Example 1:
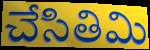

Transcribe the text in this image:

చేసితిమి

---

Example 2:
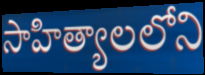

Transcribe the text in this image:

సాహిత్యాలలోని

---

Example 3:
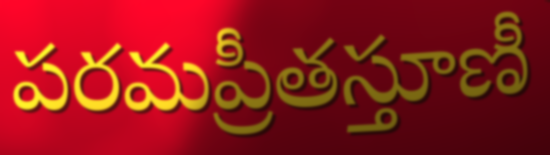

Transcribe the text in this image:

పరమప్రీతస్తూణీ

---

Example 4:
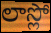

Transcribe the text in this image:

లాస్లో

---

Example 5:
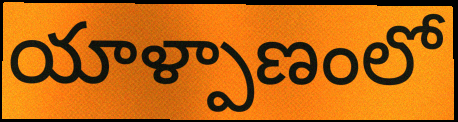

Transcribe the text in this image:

యాళ్పాణంలో